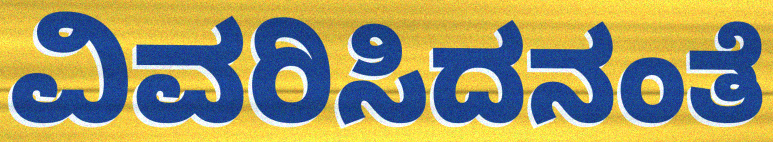
ವಿವರಿಸಿದನಂತೆ